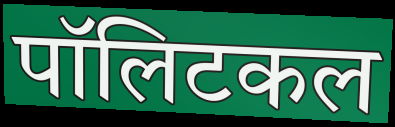
पॉलिटकल